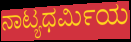
ನಾಟ್ಯಧರ್ಮಿಯ